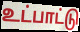
உட்பாட்டு